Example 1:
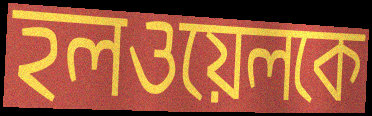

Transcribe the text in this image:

হলওয়েলকে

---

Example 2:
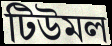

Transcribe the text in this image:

টিউমল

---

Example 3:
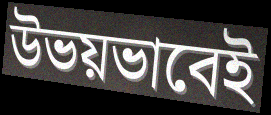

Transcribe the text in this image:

উভয়ভাবেই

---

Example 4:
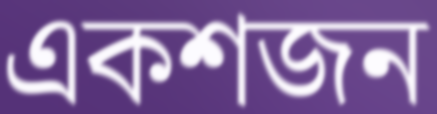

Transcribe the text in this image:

একশজন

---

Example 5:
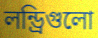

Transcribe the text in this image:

লন্ড্রিগুলো